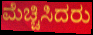
ಮೆಚ್ಚಿಸಿದರು